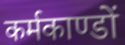
कर्मकाण्डों